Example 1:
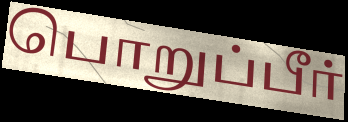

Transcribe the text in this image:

பொறுப்பீர்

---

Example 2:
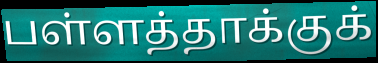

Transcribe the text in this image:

பள்ளத்தாக்குக்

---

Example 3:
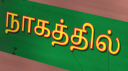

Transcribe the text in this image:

நாகத்தில்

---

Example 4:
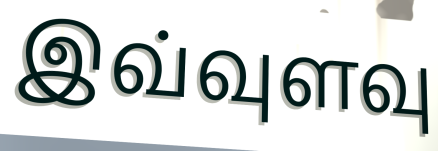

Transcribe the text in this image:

இவ்வுளவு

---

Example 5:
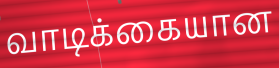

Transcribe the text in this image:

வாடிக்கையான